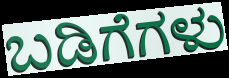
ಬಡಿಗೆಗಳು